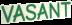
VASANT